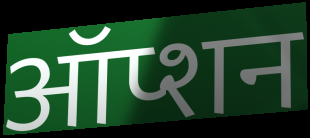
ऑप्‍शन